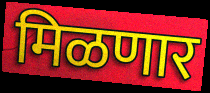
मिळणार